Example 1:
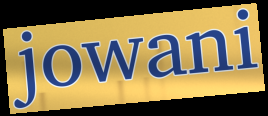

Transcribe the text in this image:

jowani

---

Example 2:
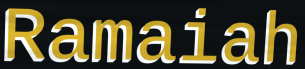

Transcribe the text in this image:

Ramaiah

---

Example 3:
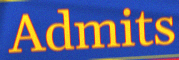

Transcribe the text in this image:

Admits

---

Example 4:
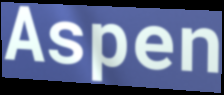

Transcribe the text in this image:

Aspen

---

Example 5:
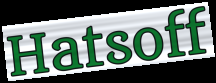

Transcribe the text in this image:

Hatsoff